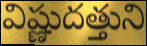
విష్ణుదత్తుని